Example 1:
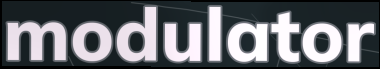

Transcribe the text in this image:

modulator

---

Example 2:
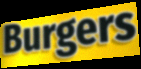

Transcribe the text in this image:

Burgers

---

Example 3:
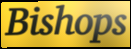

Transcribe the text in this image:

Bishops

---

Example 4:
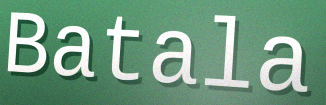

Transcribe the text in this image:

Batala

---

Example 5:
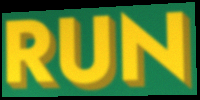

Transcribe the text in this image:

RUN